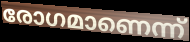
രോഗമാണെന്ന്